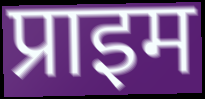
प्राइम